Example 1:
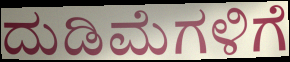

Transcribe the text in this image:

ದುಡಿಮೆಗಳಿಗೆ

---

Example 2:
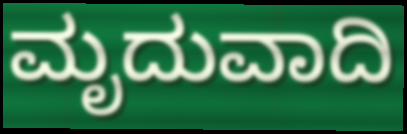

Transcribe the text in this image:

ಮೃದುವಾದಿ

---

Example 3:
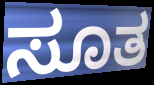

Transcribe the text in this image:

ಸೂತ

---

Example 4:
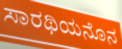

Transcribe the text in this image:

ಸಾರಥಿಯನೊನ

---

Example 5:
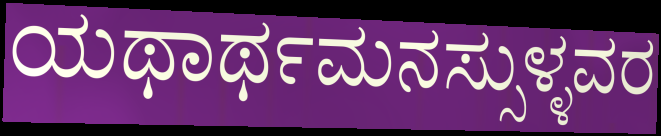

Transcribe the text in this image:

ಯಥಾರ್ಥಮನಸ್ಸುಳ್ಳವರ